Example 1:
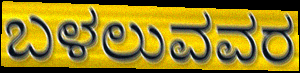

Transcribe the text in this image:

ಬಳಲುವವರ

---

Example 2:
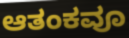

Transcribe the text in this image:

ಆತಂಕವೂ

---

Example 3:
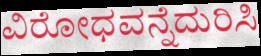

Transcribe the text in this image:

ವಿರೋಧವನ್ನೆದುರಿಸಿ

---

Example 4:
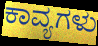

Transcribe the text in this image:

ಕಾವ್ಯಗಳು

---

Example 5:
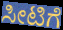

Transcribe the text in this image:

ಸೀಟಿಗೆ